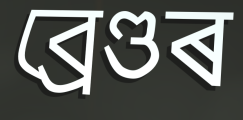
ব্ৰেণ্ডৰ